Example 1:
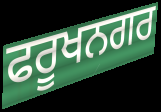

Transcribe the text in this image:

ਫਰੂਖਨਗਰ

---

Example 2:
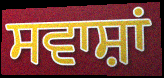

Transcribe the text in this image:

ਸਵਾਸ਼ਾਂ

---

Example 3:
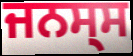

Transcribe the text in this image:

ਜਨਸ੍ਸ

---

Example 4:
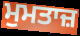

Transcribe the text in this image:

ਮੁਮਤਾਜ਼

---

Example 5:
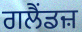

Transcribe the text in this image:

ਗਲੈਂਡਜ਼